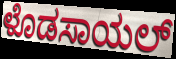
ಳೊಡಸಾಯಲ್